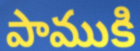
పాముకి